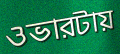
ওভারটায়